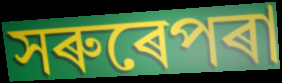
সৰুৰেপৰা